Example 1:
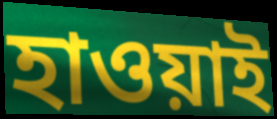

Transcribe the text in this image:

হাওয়াই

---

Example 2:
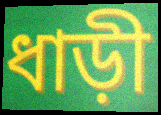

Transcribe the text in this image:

ধাড়ী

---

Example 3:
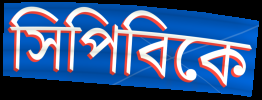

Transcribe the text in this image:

সিপিবিকে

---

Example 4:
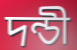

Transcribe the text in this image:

দন্ডী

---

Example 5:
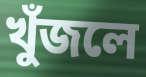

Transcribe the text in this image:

খুঁজলে